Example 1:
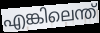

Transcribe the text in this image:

എങ്കിലെന്ത്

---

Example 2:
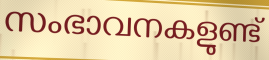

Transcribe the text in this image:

സംഭാവനകളുണ്ട്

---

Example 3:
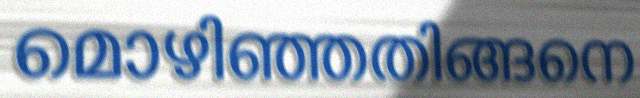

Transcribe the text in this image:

മൊഴിഞ്ഞതിങ്ങനെ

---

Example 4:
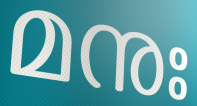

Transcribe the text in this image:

മനുഃ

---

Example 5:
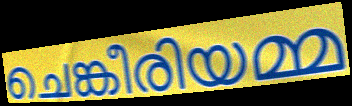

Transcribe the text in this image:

ചെങ്കീരിയമ്മ